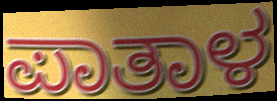
ಪಾತಾಳ